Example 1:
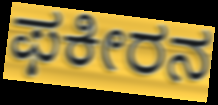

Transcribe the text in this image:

ಫಕೀರನ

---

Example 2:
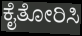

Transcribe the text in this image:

ಕೈತೋರಿಸಿ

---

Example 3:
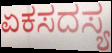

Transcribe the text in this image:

ಏಕಸದಸ್ಯ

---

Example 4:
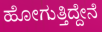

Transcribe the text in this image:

ಹೋಗುತ್ತಿದ್ದೇನೆ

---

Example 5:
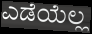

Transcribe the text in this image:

ಎಡೆಯೆಲ್ಲ